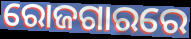
ରୋଜଗାରରେ